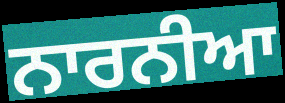
ਨਾਰਨੀਆ